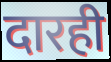
दारही